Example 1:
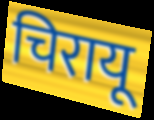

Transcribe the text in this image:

चिरायू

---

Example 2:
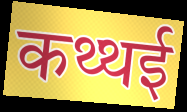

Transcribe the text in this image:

कथ्थई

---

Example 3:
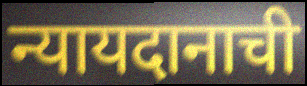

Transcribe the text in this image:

न्यायदानाची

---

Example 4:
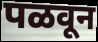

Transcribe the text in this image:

पळवून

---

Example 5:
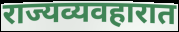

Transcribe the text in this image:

राज्यव्यवहारात